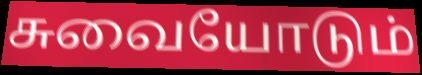
சுவையோடும்